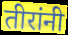
तीरांनी